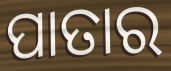
ପାତାର